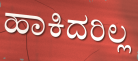
ಹಾಕಿದರಿಲ್ಲ